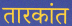
तारकांत